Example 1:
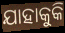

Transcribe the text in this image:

ଯାହାକୁକି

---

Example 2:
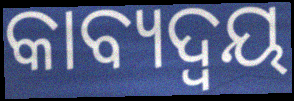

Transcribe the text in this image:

କାବ୍ୟଦ୍ୱୟ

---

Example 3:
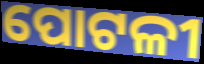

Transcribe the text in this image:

ପୋଟଳୀ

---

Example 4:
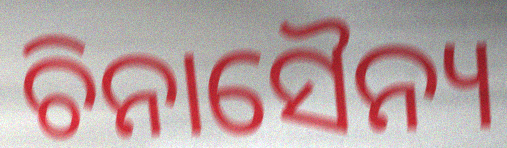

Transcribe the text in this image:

ଚିନାସୈନ୍ୟ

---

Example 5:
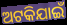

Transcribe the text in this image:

ଅଟକିଯାଇଁ